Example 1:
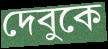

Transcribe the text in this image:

দেবুকে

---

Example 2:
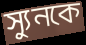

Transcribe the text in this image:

স্যুনকে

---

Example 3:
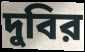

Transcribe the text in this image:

দুবির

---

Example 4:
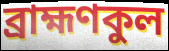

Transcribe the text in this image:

ব্রাহ্মণকুল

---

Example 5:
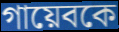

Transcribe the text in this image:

গায়েবকে